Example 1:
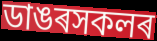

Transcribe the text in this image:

ডাঙৰসকলৰ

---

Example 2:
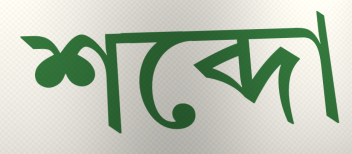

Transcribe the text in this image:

শব্দো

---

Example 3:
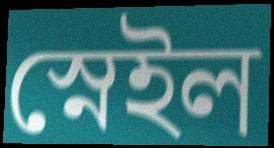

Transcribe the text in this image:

স্নেইল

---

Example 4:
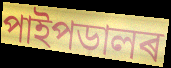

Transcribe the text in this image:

পাইপডালৰ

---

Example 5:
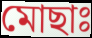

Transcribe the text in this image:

মোছাঃ